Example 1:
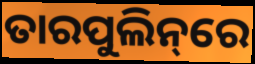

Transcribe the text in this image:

ତାରପୁଲିନ୍‌ରେ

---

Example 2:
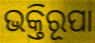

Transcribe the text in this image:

ଭକ୍ତିରୂପା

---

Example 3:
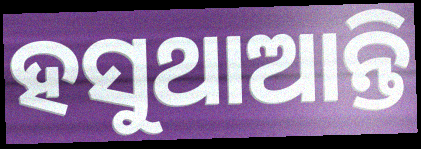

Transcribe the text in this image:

ହସୁଥାଆନ୍ତି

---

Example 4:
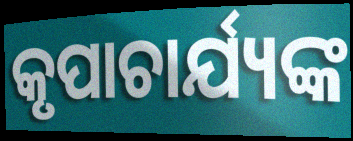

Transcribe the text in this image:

କୃପାଚାର୍ଯ୍ୟଙ୍କ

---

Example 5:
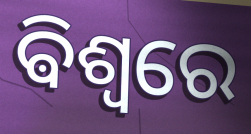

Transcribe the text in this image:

ଵିଶ୍ୱରେ